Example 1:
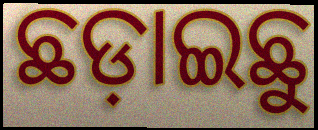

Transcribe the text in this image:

ଛଡ଼ାଇଛୁ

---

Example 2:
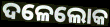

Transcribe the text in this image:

ଦଳେଲୋକ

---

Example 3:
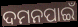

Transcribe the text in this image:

ଦମନପାଇଁ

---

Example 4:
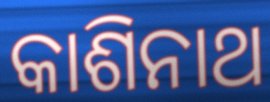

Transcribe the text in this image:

କାଶିନାଥ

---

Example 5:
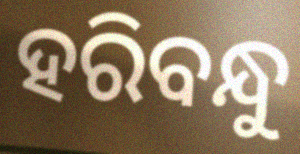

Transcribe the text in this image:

ହରିବନ୍ଧୁ